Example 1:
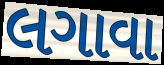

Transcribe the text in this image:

લગાવા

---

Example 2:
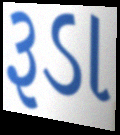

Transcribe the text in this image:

રૂડા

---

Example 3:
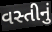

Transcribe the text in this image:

વસ્તીનું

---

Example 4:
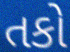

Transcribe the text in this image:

તકો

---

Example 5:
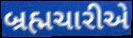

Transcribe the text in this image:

બ્રહ્મચારીએ